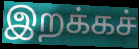
இறக்கச்